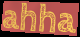
ahha